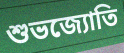
শুভজ্যোতি